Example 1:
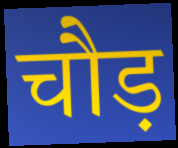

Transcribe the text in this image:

चौड़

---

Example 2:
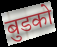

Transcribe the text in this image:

बुडको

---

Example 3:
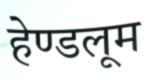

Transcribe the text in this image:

हेण्डलूम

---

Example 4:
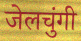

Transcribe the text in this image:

जेलचुंगी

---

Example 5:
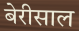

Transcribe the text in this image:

बेरीसाल